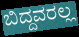
ಬಿದ್ದವರಲ್ಲ